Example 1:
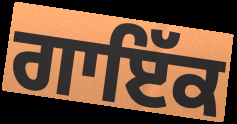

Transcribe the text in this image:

ਗਾਇੱਕ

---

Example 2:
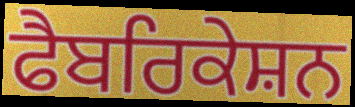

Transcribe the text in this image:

ਫੈਬਰਿਕੇਸ਼ਨ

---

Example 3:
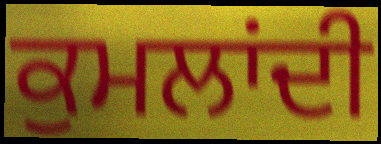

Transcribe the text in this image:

ਕੁਮਲਾਂਦੀ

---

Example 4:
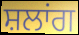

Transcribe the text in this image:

ਸ਼ਲਾਂਗ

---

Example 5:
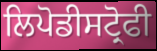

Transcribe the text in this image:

ਲਿਪੋਡੀਸਟ੍ਰੋਫੀ